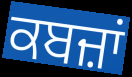
ਕਬਜ਼ਾਂ